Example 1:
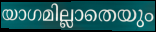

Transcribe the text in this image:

യാഗമില്ലാതെയും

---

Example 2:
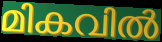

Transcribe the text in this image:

മികവിൽ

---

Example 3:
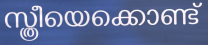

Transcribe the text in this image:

സ്ത്രീയെക്കൊണ്ട്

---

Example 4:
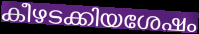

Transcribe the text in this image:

കീഴടക്കിയശേഷം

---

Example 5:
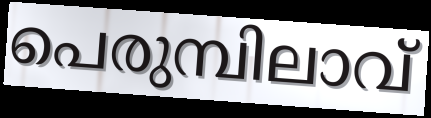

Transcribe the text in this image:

പെരുമ്പിലാവ്